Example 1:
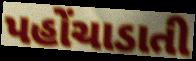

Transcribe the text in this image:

પહોંચાડાતી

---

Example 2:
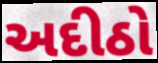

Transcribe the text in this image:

અદીઠો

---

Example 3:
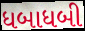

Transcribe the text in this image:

ધબાધબી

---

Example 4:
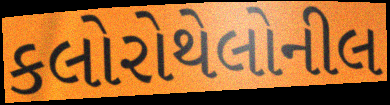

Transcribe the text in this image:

કલોરોથેલોનીલ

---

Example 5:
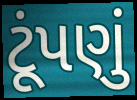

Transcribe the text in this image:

ટૂંપણું